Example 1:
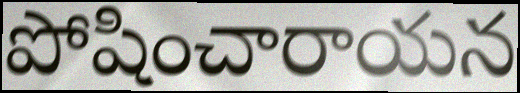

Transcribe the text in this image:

పోషించారాయన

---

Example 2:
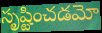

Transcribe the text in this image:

సృష్టించడమో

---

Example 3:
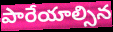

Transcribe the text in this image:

పారేయాల్సిన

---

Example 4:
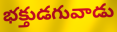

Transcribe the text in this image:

భక్తుడగువాడు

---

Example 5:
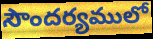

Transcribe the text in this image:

సౌందర్యములో